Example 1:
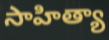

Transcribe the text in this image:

సాహిత్యా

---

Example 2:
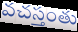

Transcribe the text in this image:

వచస్తంతు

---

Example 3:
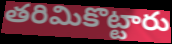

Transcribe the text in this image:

తరిమికొట్టారు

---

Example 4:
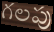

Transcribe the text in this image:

గలపు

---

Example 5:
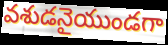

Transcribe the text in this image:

వశుడనైయుండగా